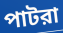
পাটরা